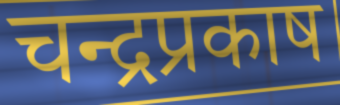
चन्द्रप्रकाष